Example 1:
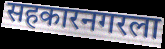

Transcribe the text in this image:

सहकारनगरला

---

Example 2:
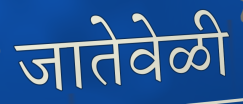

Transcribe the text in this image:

जातेवेळी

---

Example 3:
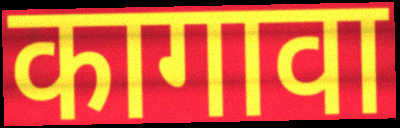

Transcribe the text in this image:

कागावा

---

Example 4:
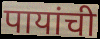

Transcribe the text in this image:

पायांची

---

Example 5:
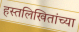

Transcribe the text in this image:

हस्तलिखितांच्या